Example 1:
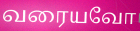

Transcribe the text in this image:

வரையவோ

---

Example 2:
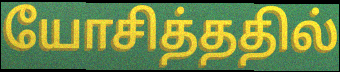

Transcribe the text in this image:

யோசித்ததில்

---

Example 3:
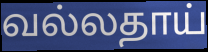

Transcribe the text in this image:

வல்லதாய்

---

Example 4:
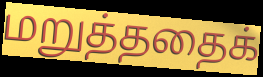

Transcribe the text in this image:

மறுத்ததைக்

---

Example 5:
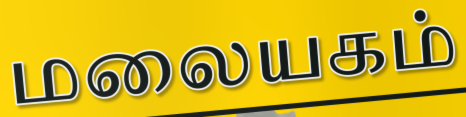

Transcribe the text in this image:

மலையகம்